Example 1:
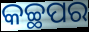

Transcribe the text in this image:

କଚ୍ଛପର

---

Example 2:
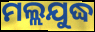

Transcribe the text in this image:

ମଲ୍ଲଯୁଦ୍ଧ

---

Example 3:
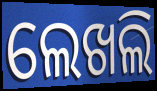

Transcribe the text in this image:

ଲେଖଲି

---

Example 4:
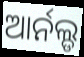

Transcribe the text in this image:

ଆର୍ନଲ୍ଡ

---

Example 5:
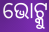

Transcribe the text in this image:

ଭୋଟ୍କୁ